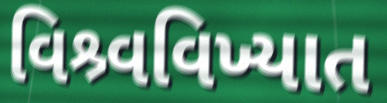
વિશ્ર્વવિખ્યાત